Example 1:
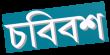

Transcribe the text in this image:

চবিবশ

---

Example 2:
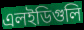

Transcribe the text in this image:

এলইডিগুলি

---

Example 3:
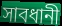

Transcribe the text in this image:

সাবধানী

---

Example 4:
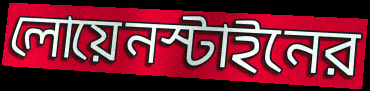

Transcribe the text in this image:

লোয়েনস্টাইনের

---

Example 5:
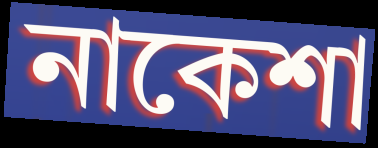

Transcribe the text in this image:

নাকেশা